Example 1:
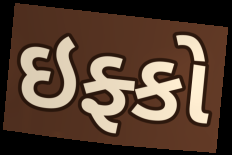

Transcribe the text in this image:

ઇફ્કો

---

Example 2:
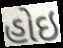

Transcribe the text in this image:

હોઇ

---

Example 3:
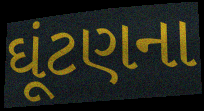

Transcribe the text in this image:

ઘૂંટણના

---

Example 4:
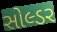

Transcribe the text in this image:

સોલ્ડર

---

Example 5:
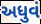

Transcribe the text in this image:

અધુવં